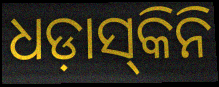
ଧଡ଼ାସ୍‌କିନି